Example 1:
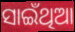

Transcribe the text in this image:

ସାଇଁଥିଆ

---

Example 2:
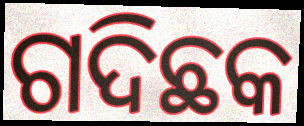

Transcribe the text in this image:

ଗଦିଛକ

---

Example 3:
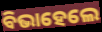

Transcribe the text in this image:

ବିଭାହେଲେ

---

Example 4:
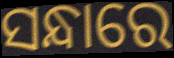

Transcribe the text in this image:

ସନ୍ଧାରେ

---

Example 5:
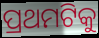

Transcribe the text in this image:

ପ୍ରଥମଟିକୁ